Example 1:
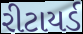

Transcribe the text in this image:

રીટાયર્ડ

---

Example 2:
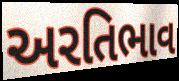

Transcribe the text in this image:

અરતિભાવ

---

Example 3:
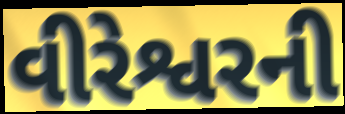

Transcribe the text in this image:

વીરેશ્વરની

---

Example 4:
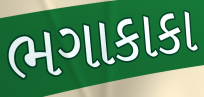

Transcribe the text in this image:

ભગાકાકા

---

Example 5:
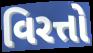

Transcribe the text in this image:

વિરત્તો